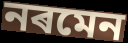
নৰমেন